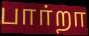
பார்றா